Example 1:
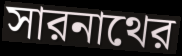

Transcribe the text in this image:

সারনাথের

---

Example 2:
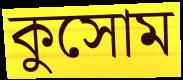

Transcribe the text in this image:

কুসোম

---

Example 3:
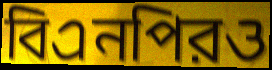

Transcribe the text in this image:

বিএনপিরও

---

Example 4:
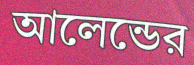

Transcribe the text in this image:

আলেন্ডের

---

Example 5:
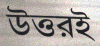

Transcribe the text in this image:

উত্তরই